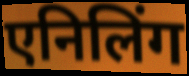
एनिलिंग